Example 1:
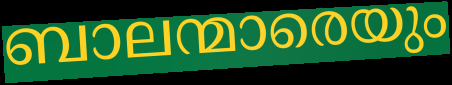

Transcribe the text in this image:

ബാലന്മാരെയും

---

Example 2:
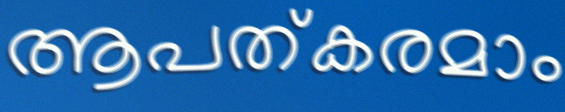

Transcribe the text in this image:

ആപത്കരമാം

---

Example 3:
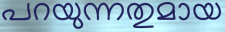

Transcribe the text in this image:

പറയുന്നതുമായ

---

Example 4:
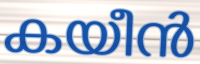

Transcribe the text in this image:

കയീൻ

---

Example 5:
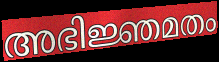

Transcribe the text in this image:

അഭിജ്ഞമതം